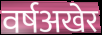
वर्षअखेर